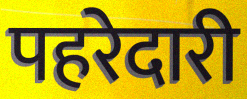
पहरेदारी